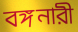
বঙ্গনারী